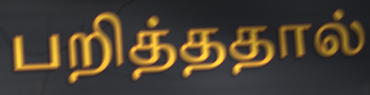
பறித்ததால்